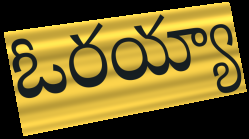
ఓరయ్యా